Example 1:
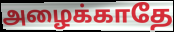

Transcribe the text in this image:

அழைக்காதே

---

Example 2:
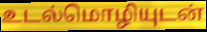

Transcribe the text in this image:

உடல்மொழியுடன்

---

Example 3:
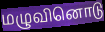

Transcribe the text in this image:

மழுவினொடு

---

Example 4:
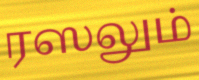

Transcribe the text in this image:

ரஸலும்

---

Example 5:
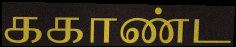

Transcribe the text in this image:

ககாண்ட